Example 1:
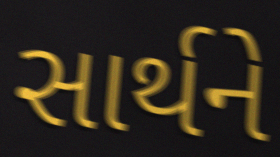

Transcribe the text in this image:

સાર્થને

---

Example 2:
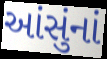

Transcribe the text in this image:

આંસુંનાં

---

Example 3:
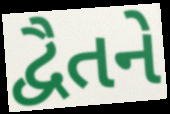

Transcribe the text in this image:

દ્વૈતને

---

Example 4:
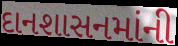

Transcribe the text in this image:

દાનશાસનમાંની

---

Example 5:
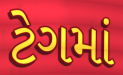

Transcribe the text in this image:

ટેગમાં